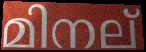
മിനല്